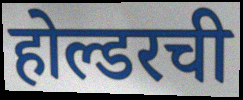
होल्डरची